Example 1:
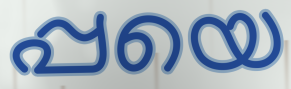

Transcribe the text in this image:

പ്പയെ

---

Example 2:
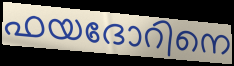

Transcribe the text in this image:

ഫയദോറിനെ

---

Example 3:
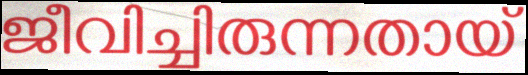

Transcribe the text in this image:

ജീവിച്ചിരുന്നതായ്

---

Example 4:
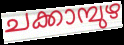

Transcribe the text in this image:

ചക്കാമ്പുഴ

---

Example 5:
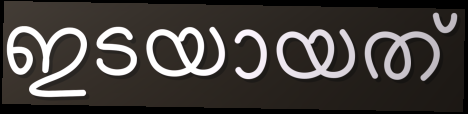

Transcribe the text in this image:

ഇടയായത്